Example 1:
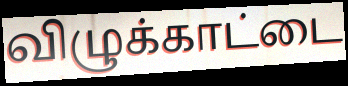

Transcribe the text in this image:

விழுக்காட்டை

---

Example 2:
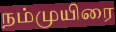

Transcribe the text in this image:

நம்முயிரை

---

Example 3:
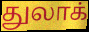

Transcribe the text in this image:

துலாக்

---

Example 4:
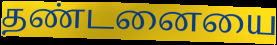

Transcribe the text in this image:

தண்டனையை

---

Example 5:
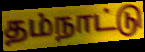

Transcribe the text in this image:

தம்நாட்டு